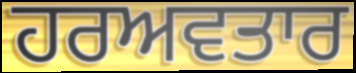
ਹਰਅਵਤਾਰ